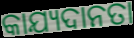
କାଯ୍ୟଦାନତା